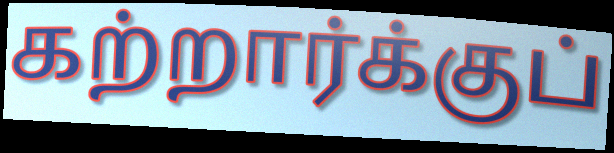
கற்றார்க்குப்